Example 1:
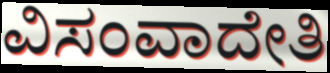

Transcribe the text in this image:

ವಿಸಂವಾದೇತಿ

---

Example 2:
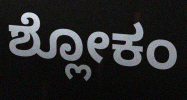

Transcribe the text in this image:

ಶ್ಲೋಕಂ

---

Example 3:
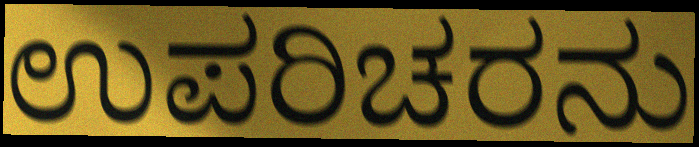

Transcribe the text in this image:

ಉಪರಿಚರನು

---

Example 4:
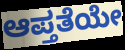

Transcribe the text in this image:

ಆಪ್ತತೆಯೇ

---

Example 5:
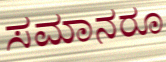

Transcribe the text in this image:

ಸಮಾನರೂ